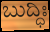
ಬುದ್ಧಿಃ